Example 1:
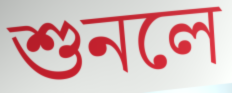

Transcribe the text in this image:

শুনলে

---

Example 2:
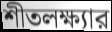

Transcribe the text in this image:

শীতলক্ষ্যার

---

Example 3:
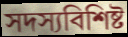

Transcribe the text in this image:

সদস্যবিশিষ্ট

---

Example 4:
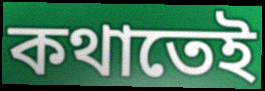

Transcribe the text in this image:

কথাতেই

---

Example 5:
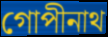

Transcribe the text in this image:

গোপীনাথ